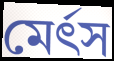
মের্ৎস